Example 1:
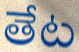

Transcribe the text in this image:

తేట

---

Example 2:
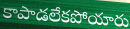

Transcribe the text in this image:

కాపాడలేకపోయారు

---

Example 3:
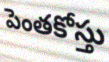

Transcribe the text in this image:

పెంతకోస్తు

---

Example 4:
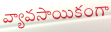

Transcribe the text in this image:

వ్యావసాయికంగా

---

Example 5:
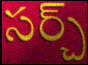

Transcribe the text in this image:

సర్చ్